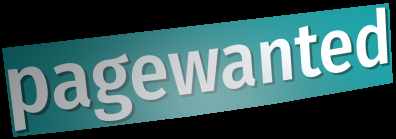
pagewanted